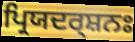
ਪ੍ਰਿਯਦਰ੍ਸ਼ਨਃ